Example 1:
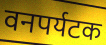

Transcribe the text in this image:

वनपर्यटक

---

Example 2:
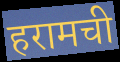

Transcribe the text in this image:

हरामची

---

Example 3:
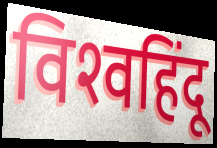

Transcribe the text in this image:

विश्वहिंदू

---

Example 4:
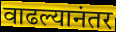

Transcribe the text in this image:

वाढल्यानंतर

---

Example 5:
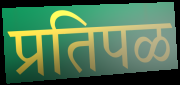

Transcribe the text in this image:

प्रतिपळ